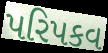
પરિપકવ